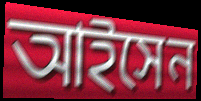
আইসেন